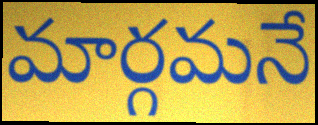
మార్గమనే